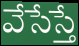
వేసేస్తే